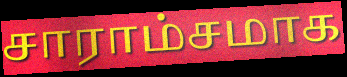
சாராம்சமாக